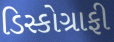
ડિસ્કોગ્રાફી